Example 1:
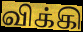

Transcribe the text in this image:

விக்கி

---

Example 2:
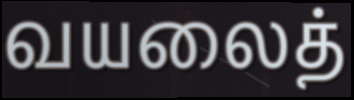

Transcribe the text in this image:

வயலைத்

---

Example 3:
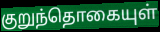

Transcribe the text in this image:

குறுந்தொகையுள்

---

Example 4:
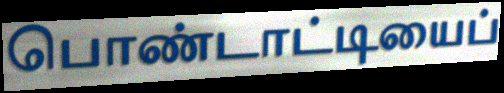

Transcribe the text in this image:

பொண்டாட்டியைப்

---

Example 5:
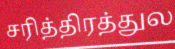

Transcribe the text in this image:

சரித்திரத்துல